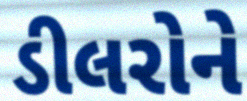
ડીલરોને